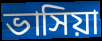
ভাসিয়া